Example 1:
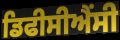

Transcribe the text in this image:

ਡਿਫੀਸੀਐਂਸੀ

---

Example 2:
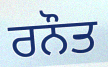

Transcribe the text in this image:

ਰਨੌਤ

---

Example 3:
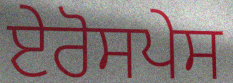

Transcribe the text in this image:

ਏਰੋਸਪੇਸ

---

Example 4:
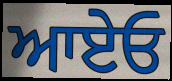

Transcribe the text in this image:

ਆਏਓ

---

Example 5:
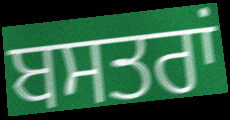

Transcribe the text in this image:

ਬਸਤਰਾਂ